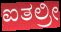
ಐತಲ್ರೀ